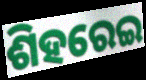
ଶିହରେଇ